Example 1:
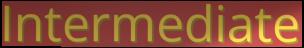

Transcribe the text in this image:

Intermediate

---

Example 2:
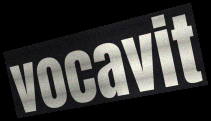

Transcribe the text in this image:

vocavit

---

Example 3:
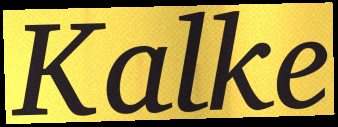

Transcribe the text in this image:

Kalke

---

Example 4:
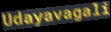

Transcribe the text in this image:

Udayavagali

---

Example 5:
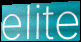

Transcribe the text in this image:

elite